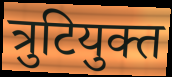
त्रुटियुक्त